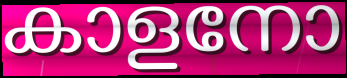
കാളനോ